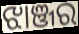
ଝାଞ୍ଜର